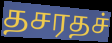
தசரதச்